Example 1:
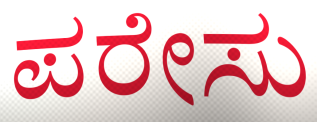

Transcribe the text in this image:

ಪರೇಸು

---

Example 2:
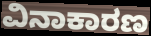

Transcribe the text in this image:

ವಿನಾಕಾರಣ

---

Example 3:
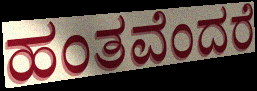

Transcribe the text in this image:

ಹಂತವೆಂದರೆ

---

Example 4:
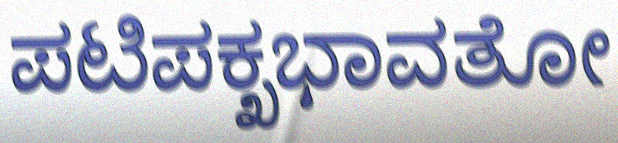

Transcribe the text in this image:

ಪಟಿಪಕ್ಖಭಾವತೋ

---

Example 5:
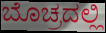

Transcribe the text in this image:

ಬೊಚ್ರದಲ್ಲಿ